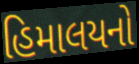
હિમાલયનો